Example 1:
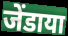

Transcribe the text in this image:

जेंडाया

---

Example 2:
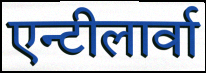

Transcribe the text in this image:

एन्टीलार्वा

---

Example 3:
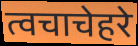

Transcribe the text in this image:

त्वचाचेहरे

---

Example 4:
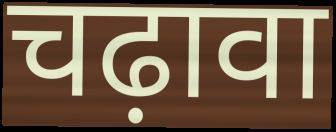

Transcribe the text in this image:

चढ़ावा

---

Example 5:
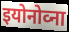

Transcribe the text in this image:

इयोनोव्ना